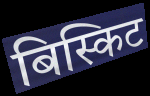
बिस्किट